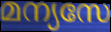
മന്യസേ